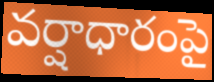
వర్షాధారంపై